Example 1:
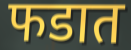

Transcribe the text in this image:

फडात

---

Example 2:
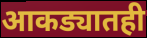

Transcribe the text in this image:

आकड्यातही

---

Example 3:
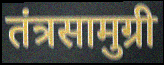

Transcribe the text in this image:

तंत्रसामुग्री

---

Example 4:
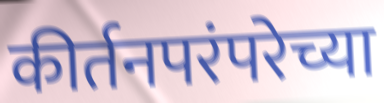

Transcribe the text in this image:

कीर्तनपरंपरेच्या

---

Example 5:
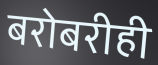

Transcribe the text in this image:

बरोबरीही